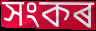
সংকৰ